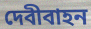
দেবীবাহন